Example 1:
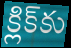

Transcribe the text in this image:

క్లిక్‌కు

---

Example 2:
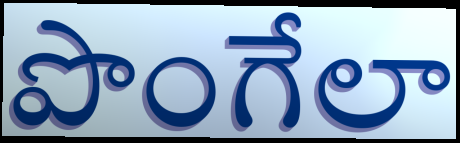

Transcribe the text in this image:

పొంగేలా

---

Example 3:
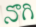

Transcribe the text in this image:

నొగి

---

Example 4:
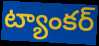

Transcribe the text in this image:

ట్యాంకర్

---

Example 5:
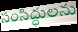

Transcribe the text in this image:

సంసిద్ధులను